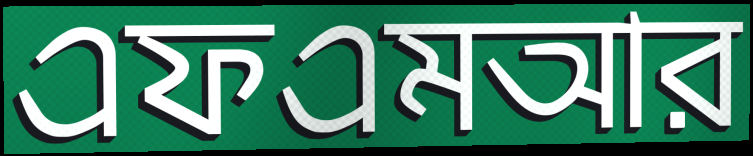
এফএমআর